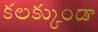
కలక్కుండా